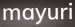
mayuri